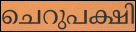
ചെറുപക്ഷി